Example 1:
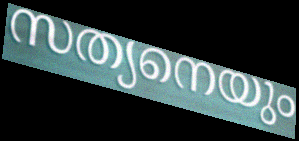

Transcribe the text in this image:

സത്യനെയും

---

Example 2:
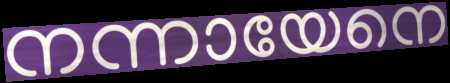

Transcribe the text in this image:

നന്നായേനെ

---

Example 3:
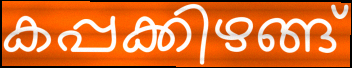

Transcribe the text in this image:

കപ്പക്കിഴങ്ങ്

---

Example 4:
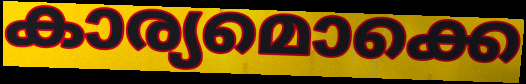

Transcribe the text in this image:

കാര്യമൊക്കെ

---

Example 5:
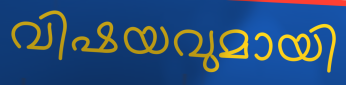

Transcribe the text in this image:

വിഷയവുമായി